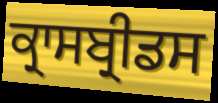
ਕ੍ਰਾਸਬ੍ਰੀਡਸ